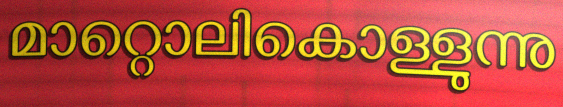
മാറ്റൊലികൊള്ളുന്നു